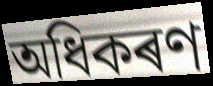
অধিকৰণ